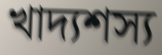
খাদ্যশস্য